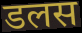
डलस